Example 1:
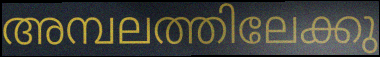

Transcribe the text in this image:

അമ്പലത്തിലേക്കു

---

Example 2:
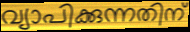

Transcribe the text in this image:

വ്യാപിക്കുന്നതിന്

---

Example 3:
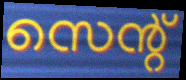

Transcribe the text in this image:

സെന്റ്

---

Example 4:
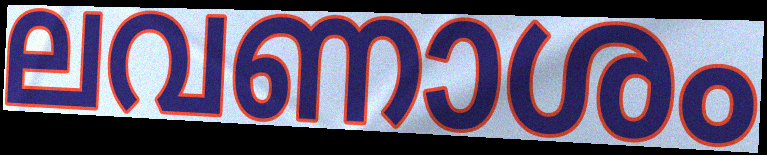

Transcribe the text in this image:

ലവണാശം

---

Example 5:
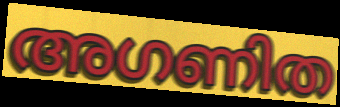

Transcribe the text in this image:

അഗണിത